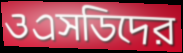
ওএসডিদের